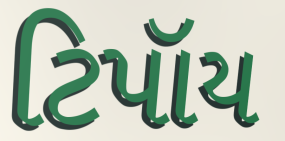
ટિપૉય